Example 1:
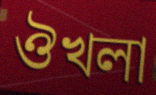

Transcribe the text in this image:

ঔখলা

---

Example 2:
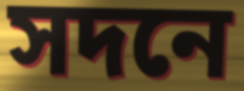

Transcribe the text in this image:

সদনে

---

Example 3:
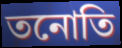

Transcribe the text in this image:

তনোতি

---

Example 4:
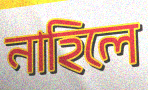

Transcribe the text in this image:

নাহিলে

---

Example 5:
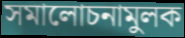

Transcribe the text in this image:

সমালোচনামুলক